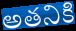
అతనికి